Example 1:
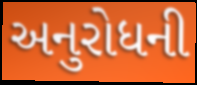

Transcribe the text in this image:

અનુરોધની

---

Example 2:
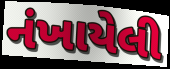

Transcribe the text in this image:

નંખાયેલી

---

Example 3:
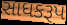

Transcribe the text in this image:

સાધકરૂપ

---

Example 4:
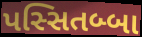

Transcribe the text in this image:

પસ્સિતબ્બા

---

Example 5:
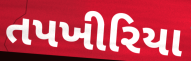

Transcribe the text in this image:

તપખીરિયા